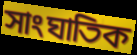
সাংঘাতিক